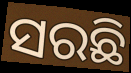
ସରଛି